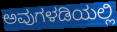
ಅವುಗಳಡಿಯಲ್ಲಿ